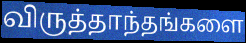
விருத்தாந்தங்களை